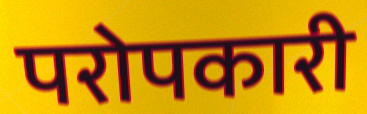
परोपकारी